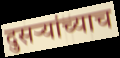
दुसऱ्यांच्याच